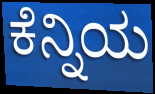
ಕೆನ್ನಿಯ